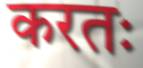
करतः